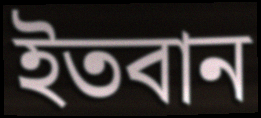
ইতবান